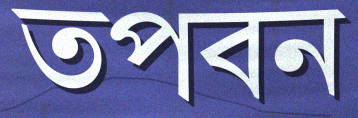
তপবন